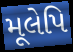
મૂલેપિ